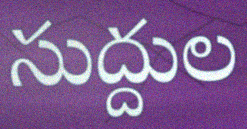
సుద్దుల